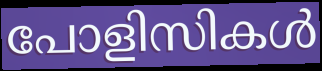
പോളിസികൾ